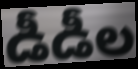
డీడీల